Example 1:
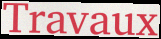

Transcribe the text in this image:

Travaux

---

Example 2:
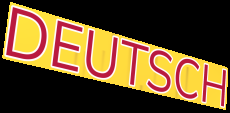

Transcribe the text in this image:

DEUTSCH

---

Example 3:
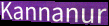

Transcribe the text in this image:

Kannanur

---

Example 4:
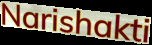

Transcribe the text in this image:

Narishakti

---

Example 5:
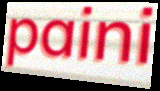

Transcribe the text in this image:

paini